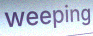
weeping